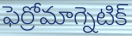
ఫెర్రోమాగ్నెటిక్